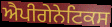
ਐਪੀਗੇਨੇਟਿਕਸ